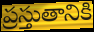
ప్రస్తుతానికి